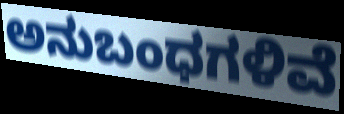
ಅನುಬಂಧಗಳಿವೆ